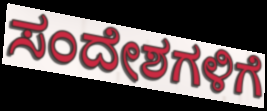
ಸಂದೇಶಗಳಿಗೆ